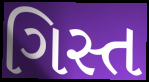
ગિસ્ત